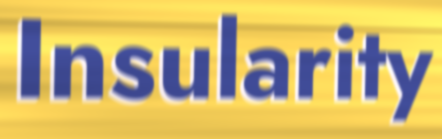
Insularity